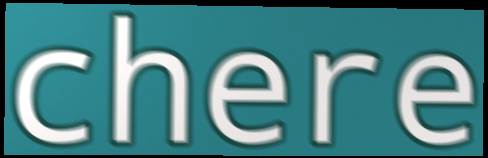
chere